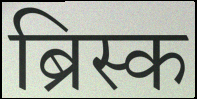
ब्रिस्क